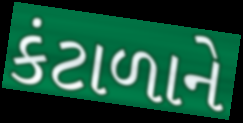
કંટાળાને